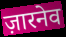
ज़ारनेव